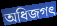
অধিজগৎ